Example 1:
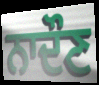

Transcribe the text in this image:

ਨਾਦੌਣ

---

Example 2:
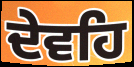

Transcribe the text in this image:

ਦੇਵਹਿ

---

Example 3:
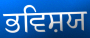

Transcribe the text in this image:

ਭਵਿਸ਼ਯ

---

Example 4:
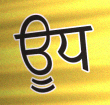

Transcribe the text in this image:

ਊਧ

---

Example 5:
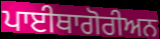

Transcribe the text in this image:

ਪਾਈਥਾਗੋਰੀਅਨ